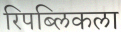
रिपब्लिकला